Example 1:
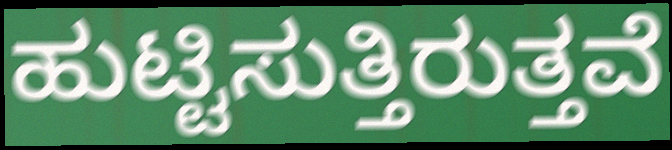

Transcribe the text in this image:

ಹುಟ್ಟಿಸುತ್ತಿರುತ್ತವೆ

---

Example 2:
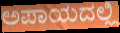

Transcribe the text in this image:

ಅಪಾಯದಲ್ಲಿ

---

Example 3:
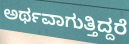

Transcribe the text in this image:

ಅರ್ಥವಾಗುತ್ತಿದ್ದರೆ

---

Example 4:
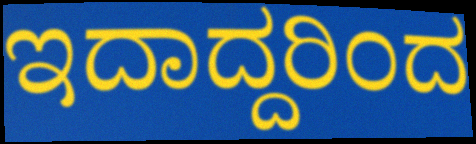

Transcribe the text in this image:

ಇದಾದ್ದರಿಂದ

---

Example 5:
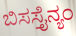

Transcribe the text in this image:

ಬಿಸಸ್ತೈನ್ಯಂ